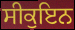
ਸੀਕੁਇਨ